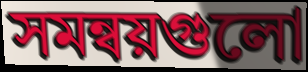
সমন্বয়গুলো